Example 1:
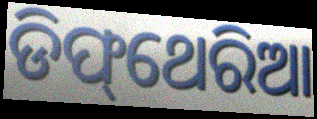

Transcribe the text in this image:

ଡିଫ୍‌ଥେରିଆ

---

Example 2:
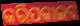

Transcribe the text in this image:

କରିପକାଇବ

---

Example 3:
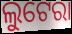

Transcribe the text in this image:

ଲୁଟେରା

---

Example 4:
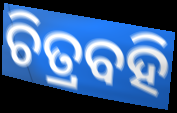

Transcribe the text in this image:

ଚିତ୍ରବହି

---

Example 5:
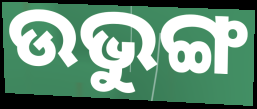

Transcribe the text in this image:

ଉଭୁଙ୍ଗ